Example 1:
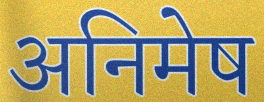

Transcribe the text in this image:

अनिमेष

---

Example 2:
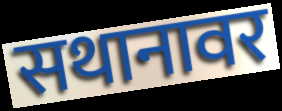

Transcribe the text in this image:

सथानावर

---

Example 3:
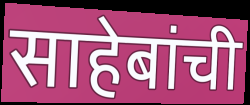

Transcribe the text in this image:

साहेबांची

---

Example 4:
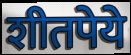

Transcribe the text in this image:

शीतपेये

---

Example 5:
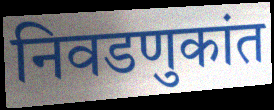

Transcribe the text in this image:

निवडणुकांत